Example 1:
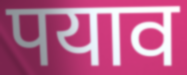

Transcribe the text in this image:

पयाव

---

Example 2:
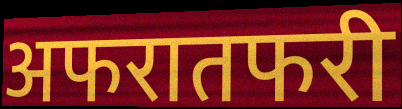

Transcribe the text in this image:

अफरातफरी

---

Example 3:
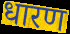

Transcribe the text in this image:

धारण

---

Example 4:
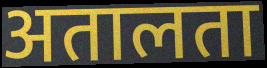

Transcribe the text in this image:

अतालता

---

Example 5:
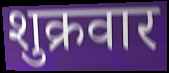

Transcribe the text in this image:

शुक्रवार